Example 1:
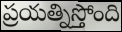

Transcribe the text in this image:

ప్రయత్నిస్తోంది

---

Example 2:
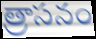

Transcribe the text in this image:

త్రాసనం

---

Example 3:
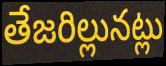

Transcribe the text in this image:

తేజరిల్లునట్లు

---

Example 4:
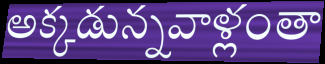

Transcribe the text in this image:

అక్కడున్నవాళ్లంతా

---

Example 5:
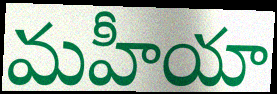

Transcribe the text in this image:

మహీయా